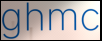
ghmc